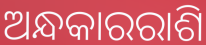
ଅନ୍ଧକାରରାଶି